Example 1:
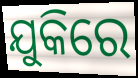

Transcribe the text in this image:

ଯୁକିରେ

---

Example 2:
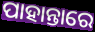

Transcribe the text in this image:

ପାହାନ୍ତାରେ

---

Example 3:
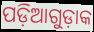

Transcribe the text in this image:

ପଡ଼ିଆଗୁଡ଼ାକ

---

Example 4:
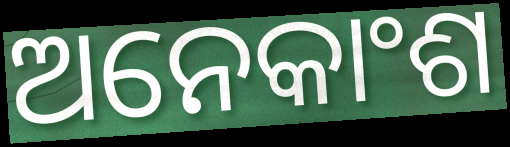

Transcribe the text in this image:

ଅନେକାଂଶ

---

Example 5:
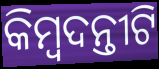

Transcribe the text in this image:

କିମ୍ୱଦନ୍ତୀଟି